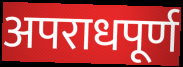
अपराधपूर्ण